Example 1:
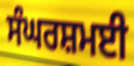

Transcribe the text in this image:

ਸੰਘਰਸ਼ਮਈ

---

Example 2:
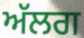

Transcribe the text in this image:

ਅੱਲਗ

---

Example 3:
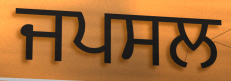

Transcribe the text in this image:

ਜਪਸਲ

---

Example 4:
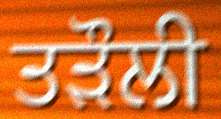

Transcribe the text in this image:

ਤੜੌਲੀ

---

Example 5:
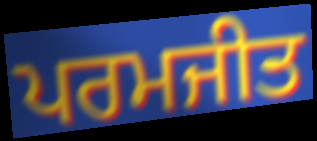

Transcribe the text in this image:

ਪਰਮਜੀਤ